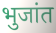
भुजांत